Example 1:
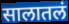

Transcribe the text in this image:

सालातलं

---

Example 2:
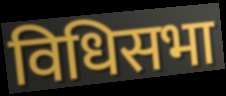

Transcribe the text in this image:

विधिसभा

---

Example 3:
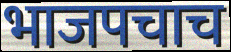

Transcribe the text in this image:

भाजपचाच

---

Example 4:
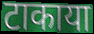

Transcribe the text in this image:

टाकाया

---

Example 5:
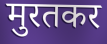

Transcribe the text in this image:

मुरतकर